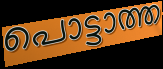
പൊട്ടാത്ത